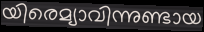
യിരെമ്യാവിന്നുണ്ടായ